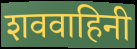
शववाहिनी